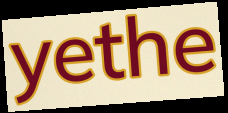
yethe